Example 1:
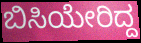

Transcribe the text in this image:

ಬಿಸಿಯೇರಿದ್ದ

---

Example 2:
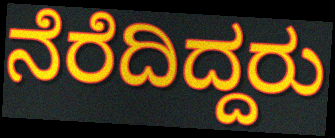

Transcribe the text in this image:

ನೆರೆದಿದ್ದರು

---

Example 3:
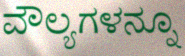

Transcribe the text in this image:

ವೌಲ್ಯಗಳನ್ನೂ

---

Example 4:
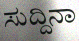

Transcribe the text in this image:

ಸುದ್ದಿನಾ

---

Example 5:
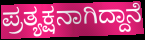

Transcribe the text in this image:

ಪ್ರತ್ಯಕ್ಷನಾಗಿದ್ದಾನೆ